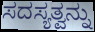
ಸದಸ್ಯತ್ವನ್ನು